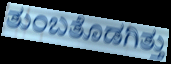
ತುಂಬತೊಡಗಿತ್ತು